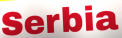
Serbia